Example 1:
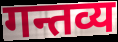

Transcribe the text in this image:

गन्तव्य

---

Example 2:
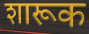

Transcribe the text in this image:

शारूक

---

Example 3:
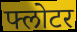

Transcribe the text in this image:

फ्लोटर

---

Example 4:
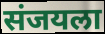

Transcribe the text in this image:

संजयला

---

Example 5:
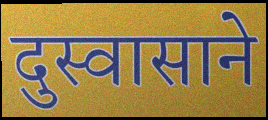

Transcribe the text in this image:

दुस्वासाने